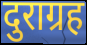
दुराग्रह